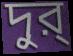
দুর্